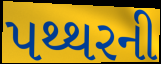
પથ્થરની